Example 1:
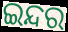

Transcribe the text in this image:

ଇନ୍ଦର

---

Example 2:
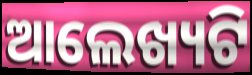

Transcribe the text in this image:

ଆଲେଖ୍ୟଟି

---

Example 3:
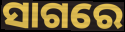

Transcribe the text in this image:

ସାଗରେ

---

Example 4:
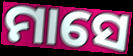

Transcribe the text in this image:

ମାସେ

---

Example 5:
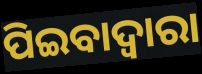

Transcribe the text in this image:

ପିଇବାଦ୍ଵାରା